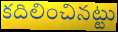
కదిలించినట్టు